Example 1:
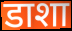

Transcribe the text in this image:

डाशा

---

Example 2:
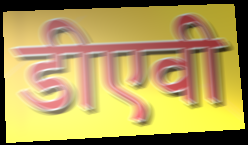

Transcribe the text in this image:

डीएवी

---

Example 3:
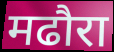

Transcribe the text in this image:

मढौरा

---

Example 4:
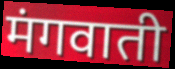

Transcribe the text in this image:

मंगवाती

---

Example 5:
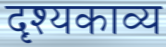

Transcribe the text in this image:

दृश्यकाव्य